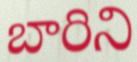
బారిని